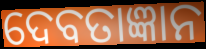
ଦେବତାଜ୍ଞାନ